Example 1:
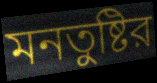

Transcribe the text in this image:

মনতুষ্টির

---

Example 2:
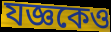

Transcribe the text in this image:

যজ্ঞকেও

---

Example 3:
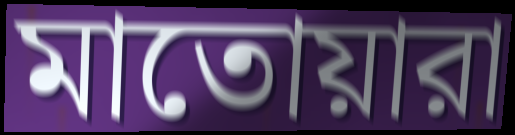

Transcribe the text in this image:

মাতোয়ারা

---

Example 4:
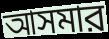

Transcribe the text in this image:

আসমার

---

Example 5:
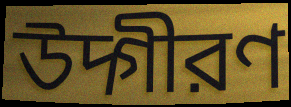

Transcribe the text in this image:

উদ্গীরণ